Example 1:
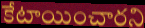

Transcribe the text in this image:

కేటాయించారని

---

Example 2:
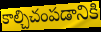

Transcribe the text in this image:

కాల్చిచంపడానికి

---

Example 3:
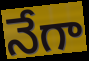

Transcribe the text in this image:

నేగా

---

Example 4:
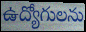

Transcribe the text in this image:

ఉద్యోగులను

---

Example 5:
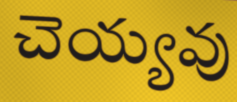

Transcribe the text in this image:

చెయ్యవు